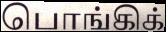
பொங்கிக்